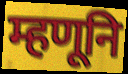
म्हणूनि